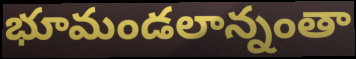
భూమండలాన్నంతా